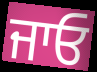
ਜਾਓ